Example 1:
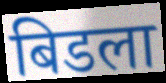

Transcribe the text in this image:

बिडला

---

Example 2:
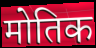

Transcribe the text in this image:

मोतिक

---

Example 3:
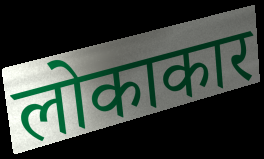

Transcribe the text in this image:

लोकाकार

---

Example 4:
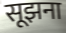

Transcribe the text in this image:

सूझना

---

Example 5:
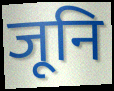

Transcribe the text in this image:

जूनि